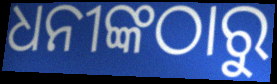
ଧନୀଙ୍କଠାରୁ